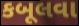
કબૂલવા